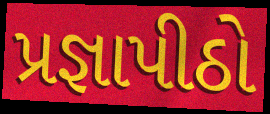
પ્રજ્ઞાપીઠો